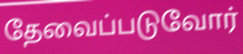
தேவைப்படுவோர்